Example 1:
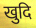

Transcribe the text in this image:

खुदि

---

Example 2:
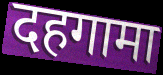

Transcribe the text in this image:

दहगामा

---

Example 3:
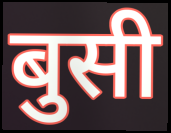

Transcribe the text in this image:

बुसी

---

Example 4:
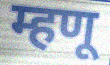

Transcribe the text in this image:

म्हणू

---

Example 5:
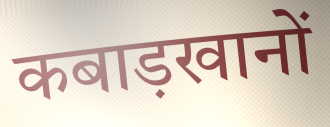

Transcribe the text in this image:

कबाड़खानों